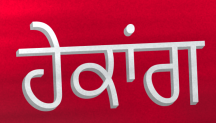
ਹੇਕਾਂਗ